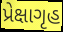
પ્રેક્ષાગૃહ